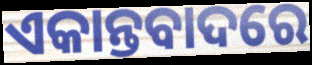
ଏକାନ୍ତବାଦରେ